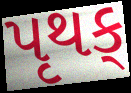
પૃથક્